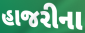
હાજરીના